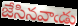
జేసినవాఁడు